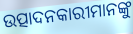
ଉତ୍ପାଦନକାରୀମାନଙ୍କୁ